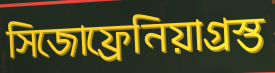
সিজোফ্রেনিয়াগ্রস্ত